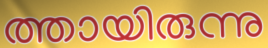
ത്തായിരുന്നു